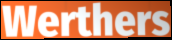
Werthers